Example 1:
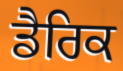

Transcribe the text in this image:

ਡੈਰਿਕ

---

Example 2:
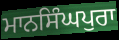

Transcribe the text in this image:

ਮਾਨਸਿੰਘਪੁਰਾ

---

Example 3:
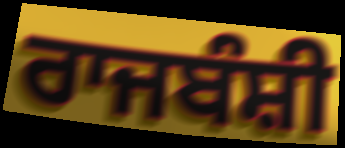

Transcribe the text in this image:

ਰਾਜਬੰਸ਼ੀ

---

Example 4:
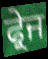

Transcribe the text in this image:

ਫ੍ਰੇਜ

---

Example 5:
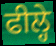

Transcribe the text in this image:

ਫੀਲ੍ਹੇ